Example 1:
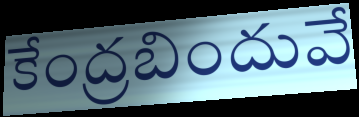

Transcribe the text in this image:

కేంద్రబిందువే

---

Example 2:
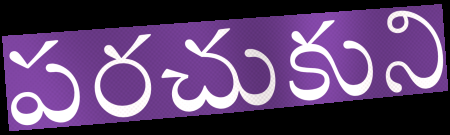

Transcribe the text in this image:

పరచుకుని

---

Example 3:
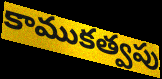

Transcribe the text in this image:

కాముకత్వపు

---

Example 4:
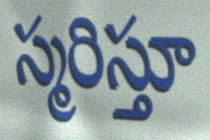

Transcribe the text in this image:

స్మరిస్తూ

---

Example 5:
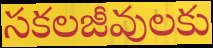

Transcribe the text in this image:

సకలజీవులకు